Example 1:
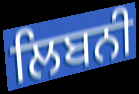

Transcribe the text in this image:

ਲਿਬਨੀ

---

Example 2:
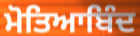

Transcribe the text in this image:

ਮੋਤਿਆਬਿੰਦ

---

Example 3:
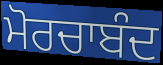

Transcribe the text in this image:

ਮੋਰਚਾਬੰਦ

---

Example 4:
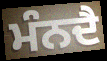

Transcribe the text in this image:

ਮੰਨਦੈ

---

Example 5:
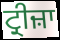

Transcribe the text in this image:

ਟ੍ਰੀਜ਼ਾ